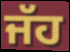
ਜੱਹ